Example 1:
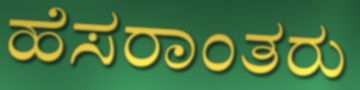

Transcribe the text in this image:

ಹೆಸರಾಂತರು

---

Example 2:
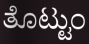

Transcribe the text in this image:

ತೊಟ್ಟುಂ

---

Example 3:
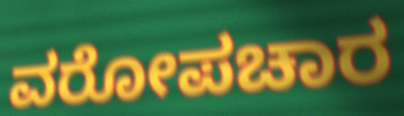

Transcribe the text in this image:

ವರೋಪಚಾರ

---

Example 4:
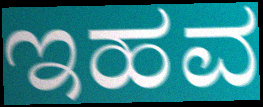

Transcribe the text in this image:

ಇಹವ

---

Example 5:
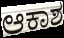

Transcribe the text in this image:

ಆಕಾಶ